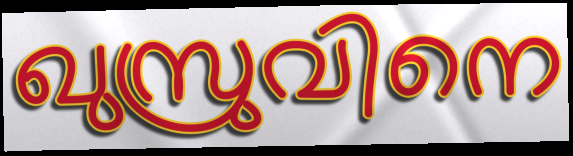
ഖുസ്രുവിനെ